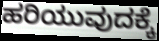
ಹರಿಯುವುದಕ್ಕೆ